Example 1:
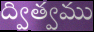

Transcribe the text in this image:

ద్విత్వము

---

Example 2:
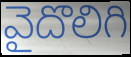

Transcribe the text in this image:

వైదొలిగి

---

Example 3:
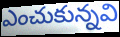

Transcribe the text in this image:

ఎంచుకున్నవి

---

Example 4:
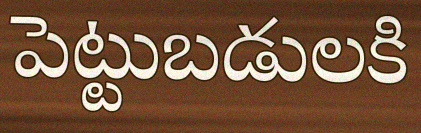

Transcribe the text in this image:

పెట్టుబడులకి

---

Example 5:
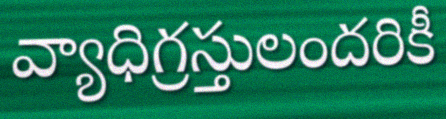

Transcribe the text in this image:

వ్యాధిగ్రస్తులందరికీ